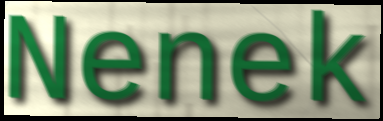
Nenek